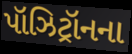
પૉઝિટ્રૉનના